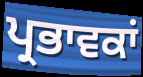
ਪ੍ਰਭਾਵਕਾਂ